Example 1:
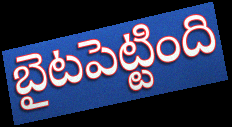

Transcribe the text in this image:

బైటపెట్టింది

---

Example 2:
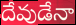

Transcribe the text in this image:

దేవుడేనా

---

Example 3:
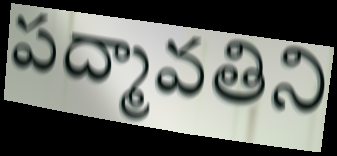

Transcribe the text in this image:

పద్మావతిని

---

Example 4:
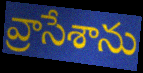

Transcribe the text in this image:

వ్రాసేశాను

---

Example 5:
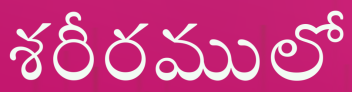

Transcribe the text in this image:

శరీరములో